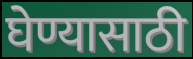
घेण्यासाठी